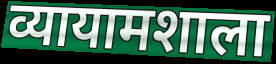
व्यायामशाला